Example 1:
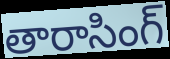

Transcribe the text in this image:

తారాసింగ్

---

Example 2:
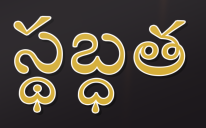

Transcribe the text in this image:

స్థబ్ధత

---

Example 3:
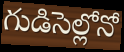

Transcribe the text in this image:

గుడిసెల్లోనో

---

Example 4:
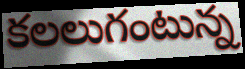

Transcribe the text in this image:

కలలుగంటున్న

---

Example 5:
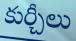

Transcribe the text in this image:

కుర్చీలు